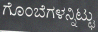
ಗೊಂಬೆಗಳನ್ನಿಟ್ಟು